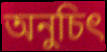
অনুচিৎ